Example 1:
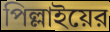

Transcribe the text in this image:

পিল্লাইয়ের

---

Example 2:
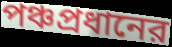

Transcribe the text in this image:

পঞ্চপ্রধানের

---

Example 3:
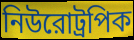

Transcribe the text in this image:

নিউরোট্রপিক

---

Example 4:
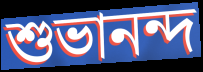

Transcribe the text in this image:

শুভানন্দ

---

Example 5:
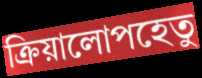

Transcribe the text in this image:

ক্রিয়ালোপহেতু